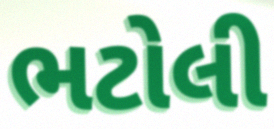
ભટોલી